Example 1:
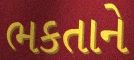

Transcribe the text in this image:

ભકતાને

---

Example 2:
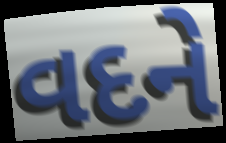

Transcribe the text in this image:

વદને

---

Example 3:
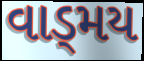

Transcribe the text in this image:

વાડ્મય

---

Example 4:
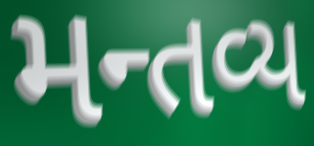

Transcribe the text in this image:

મન્તવ્ય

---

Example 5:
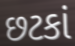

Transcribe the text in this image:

છટકાં